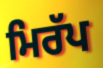
ਮਿਰੱਪ